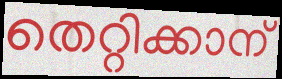
തെറ്റിക്കാന്